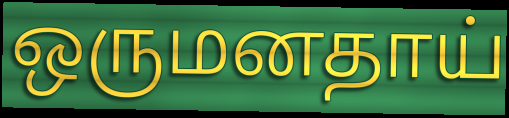
ஒருமனதாய்